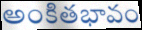
అంకితభావం